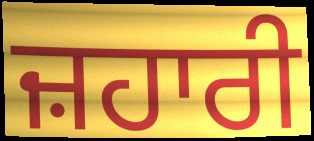
ਜ਼ਹਾਰੀ